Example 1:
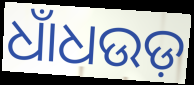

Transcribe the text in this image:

ଧାଁଧଉଡ଼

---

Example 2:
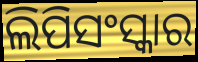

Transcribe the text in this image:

ଲିପିସଂସ୍କାର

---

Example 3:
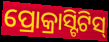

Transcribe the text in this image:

ପ୍ରୋକ୍ରାସ୍ଟିଟିସ୍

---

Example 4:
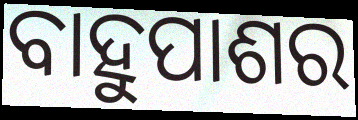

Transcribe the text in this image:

ବାହୁପାଶର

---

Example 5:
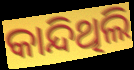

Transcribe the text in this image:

କାନ୍ଦିଥିଲି